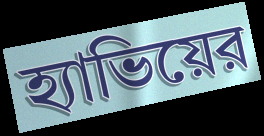
হ্যাভিয়ের